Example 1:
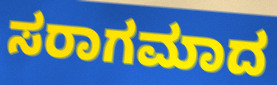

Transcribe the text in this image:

ಸರಾಗಮಾದ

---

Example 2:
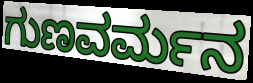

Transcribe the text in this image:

ಗುಣವರ್ಮನ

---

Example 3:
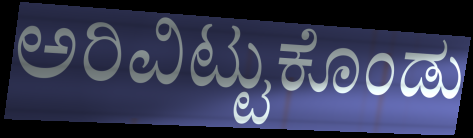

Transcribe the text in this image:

ಅರಿವಿಟ್ಟುಕೊಂಡು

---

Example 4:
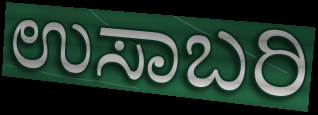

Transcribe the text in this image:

ಉಸಾಬರಿ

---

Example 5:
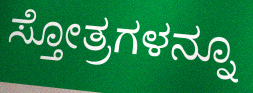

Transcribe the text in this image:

ಸ್ತೋತ್ರಗಳನ್ನೂ